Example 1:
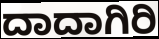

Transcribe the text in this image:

ದಾದಾಗಿರಿ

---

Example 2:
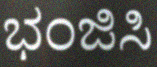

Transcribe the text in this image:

ಭಂಜಿಸಿ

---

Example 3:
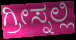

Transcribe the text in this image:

ಗ್ರೀಸ್ನಲ್ಲಿ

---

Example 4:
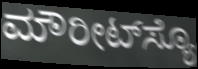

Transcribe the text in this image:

ಮೌರೀಟ್‌ಸ್ಯೊ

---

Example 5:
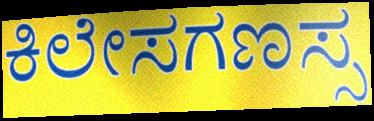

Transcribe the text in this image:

ಕಿಲೇಸಗಣಸ್ಸ